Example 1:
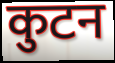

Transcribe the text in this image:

कुटन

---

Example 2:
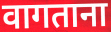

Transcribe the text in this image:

वागताना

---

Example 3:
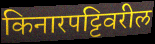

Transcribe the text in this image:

किनारपट्टिवरील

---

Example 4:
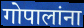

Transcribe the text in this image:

गोपालांना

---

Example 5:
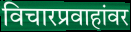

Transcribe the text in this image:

विचारप्रवाहांवर